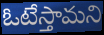
ఓటేస్తామని